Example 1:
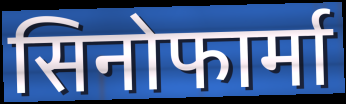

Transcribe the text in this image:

सिनोफार्मा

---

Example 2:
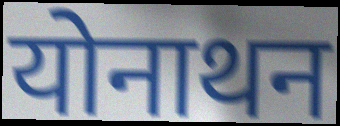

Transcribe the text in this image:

योनाथन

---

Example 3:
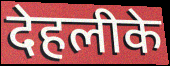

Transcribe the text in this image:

देहलीके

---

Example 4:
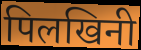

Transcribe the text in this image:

पिलखिनी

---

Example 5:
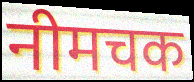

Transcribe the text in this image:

नीमचक